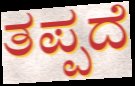
ತಪ್ಪದೆ